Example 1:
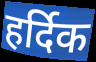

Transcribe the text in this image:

हर्दिक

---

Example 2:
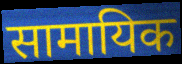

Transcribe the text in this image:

सामायिक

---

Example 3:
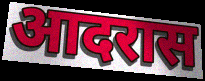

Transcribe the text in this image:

आदरास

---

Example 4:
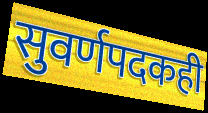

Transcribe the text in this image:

सुवर्णपदकही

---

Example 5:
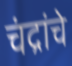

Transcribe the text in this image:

चंद्रांचे